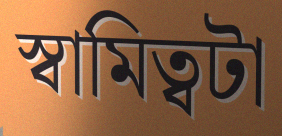
স্বামিত্বটা